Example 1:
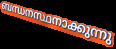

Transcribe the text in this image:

ബന്ധനസ്ഥനാക്കുന്നു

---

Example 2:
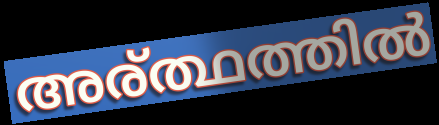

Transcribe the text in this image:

അര്ത്ഥത്തിൽ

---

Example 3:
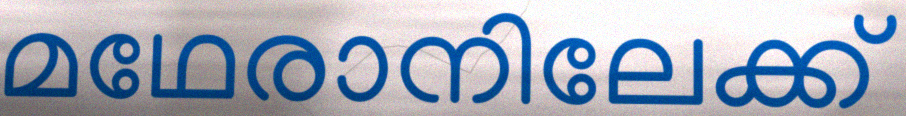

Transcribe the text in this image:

മഥേരാനിലേക്ക്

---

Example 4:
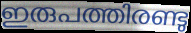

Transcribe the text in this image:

ഇരുപത്തിരണ്ടു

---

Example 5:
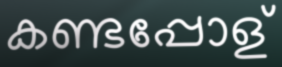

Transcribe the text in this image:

കണ്ടപ്പോള്